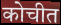
कोचीत